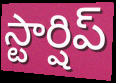
స్టార్షిప్